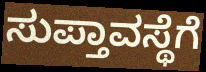
ಸುಪ್ತಾವಸ್ಥೆಗೆ